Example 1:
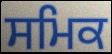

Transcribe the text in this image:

ਸਮਿਕ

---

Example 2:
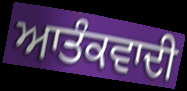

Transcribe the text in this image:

ਆਤੰਕਵਾਦੀ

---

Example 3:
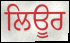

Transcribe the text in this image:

ਲਿਊਰ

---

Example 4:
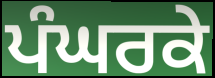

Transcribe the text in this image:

ਪੰਘਰਕੇ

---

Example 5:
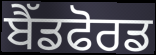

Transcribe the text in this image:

ਬੈੱਡਫੋਰਡ